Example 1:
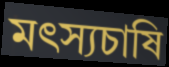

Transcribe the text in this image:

মৎস্যচাষি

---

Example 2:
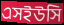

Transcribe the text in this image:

এসইউসি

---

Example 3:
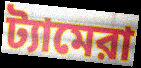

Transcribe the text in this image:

ট্যামেরা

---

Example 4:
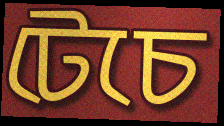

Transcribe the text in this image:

টেচে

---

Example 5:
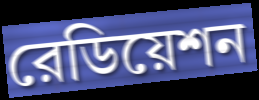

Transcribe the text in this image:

রেডিয়েশন